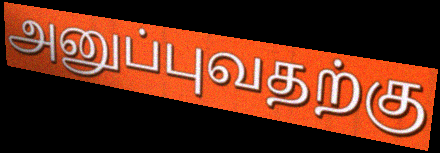
அனுப்புவதற்கு